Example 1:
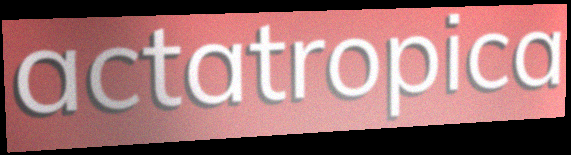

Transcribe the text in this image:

actatropica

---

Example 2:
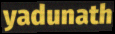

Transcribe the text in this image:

yadunath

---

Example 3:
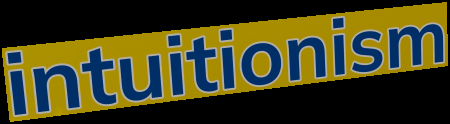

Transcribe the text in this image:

intuitionism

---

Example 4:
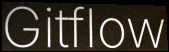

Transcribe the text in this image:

Gitflow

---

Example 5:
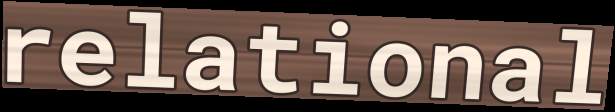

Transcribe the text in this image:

relational